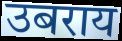
उबराय